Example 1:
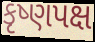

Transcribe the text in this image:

કૃષ્ણપક્ષ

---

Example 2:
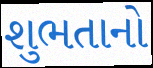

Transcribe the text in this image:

શુભતાનો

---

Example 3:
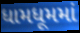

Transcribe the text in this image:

ધામધૂમમાં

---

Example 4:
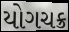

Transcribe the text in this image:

યોગચક્ર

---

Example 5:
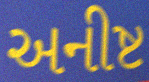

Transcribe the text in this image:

અનીષ્ટ